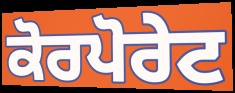
ਕੋਰਪੋਰੇਟ